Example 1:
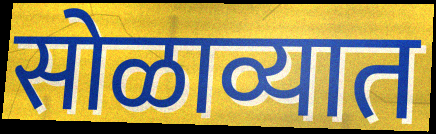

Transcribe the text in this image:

सोळाव्यात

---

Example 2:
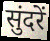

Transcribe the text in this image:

सुंदरें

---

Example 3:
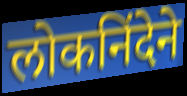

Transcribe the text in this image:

लोकनिंदेने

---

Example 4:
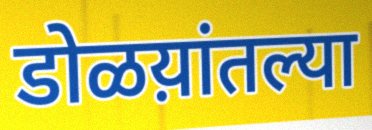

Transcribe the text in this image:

डोळय़ांतल्या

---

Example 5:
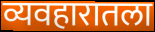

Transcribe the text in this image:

व्यवहारातला